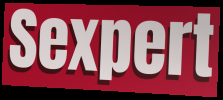
Sexpert